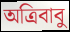
অত্রিবাবু